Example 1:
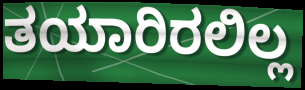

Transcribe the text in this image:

ತಯಾರಿರಲಿಲ್ಲ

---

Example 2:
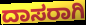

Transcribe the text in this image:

ದಾಸರಾಗಿ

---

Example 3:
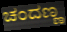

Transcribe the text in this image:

ಚಂದಣ್ಣ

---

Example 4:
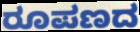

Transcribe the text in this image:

ರೂಪಣದ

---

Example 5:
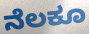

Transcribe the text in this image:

ನೆಲಕೂ